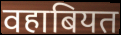
वहाबियत